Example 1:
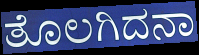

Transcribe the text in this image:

ತೊಲಗಿದನಾ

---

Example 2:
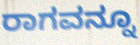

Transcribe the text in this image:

ರಾಗವನ್ನೂ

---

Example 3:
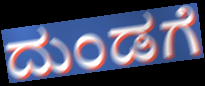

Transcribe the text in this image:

ದುಂಡಗೆ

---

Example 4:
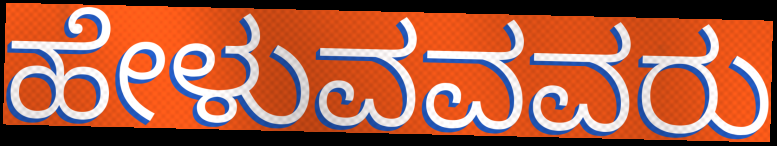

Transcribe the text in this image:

ಹೇಳುವವವರು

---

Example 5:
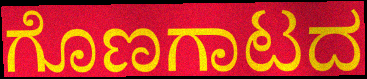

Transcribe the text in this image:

ಗೊಣಗಾಟದ